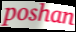
poshan